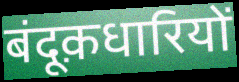
बंदूक़धारियों